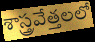
శాస్త్రవేత్తలలో